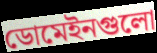
ডোমেইনগুলো